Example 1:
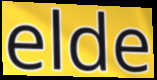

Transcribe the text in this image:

elde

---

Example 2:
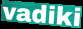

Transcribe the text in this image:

vadiki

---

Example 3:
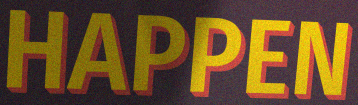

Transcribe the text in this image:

HAPPEN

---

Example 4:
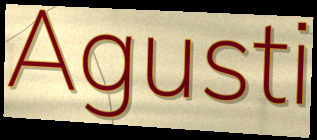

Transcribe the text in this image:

Agusti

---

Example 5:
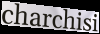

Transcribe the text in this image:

charchisi